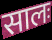
सालः